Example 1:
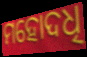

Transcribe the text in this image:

ମହୋଦଧି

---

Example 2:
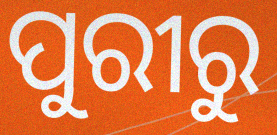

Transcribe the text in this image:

ପୁରୀରୁ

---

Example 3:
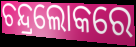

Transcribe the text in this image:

ଚନ୍ଦ୍ରଲୋକରେ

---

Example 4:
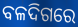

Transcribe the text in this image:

ବଳଦିଗରେ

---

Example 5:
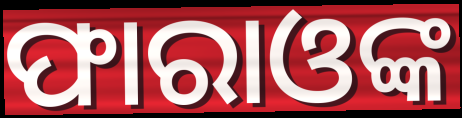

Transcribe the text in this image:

ଫାରାଓଙ୍କ